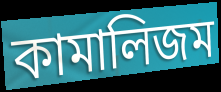
কামালিজম